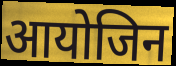
आयोजिन